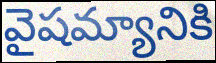
వైషమ్యానికి